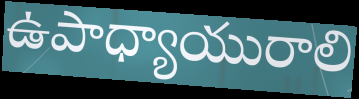
ఉపాధ్యాయురాలి